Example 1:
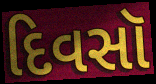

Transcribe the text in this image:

દિવસૉ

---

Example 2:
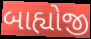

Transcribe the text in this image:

બાહ્યોજી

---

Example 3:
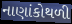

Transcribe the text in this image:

નાણાંકોથળી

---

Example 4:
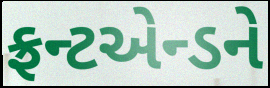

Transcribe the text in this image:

ફ્રન્ટએન્ડને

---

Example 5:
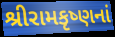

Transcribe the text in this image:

શ્રીરામકૃષ્ણનાં